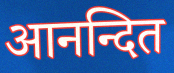
आनन्दित